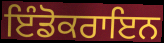
ਇੰਡੋਕਰਾਇਨ